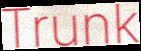
Trunk